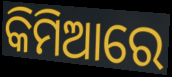
କିମିଆରେ